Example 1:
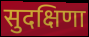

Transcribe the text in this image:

सुदक्षिणा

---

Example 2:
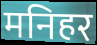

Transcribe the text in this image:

मनिहर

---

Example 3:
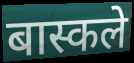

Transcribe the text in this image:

बास्कले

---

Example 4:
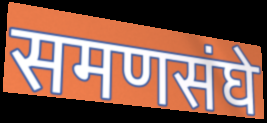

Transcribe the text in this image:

समणसंघे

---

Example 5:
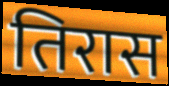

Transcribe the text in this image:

तिरास